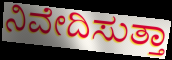
ನಿವೇದಿಸುತ್ತಾ